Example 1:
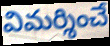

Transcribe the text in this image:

విమర్శించే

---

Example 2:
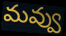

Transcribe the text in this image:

మవ్వు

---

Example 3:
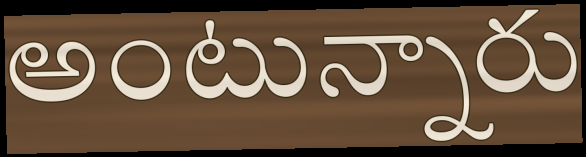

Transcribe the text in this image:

అంటున్నారు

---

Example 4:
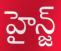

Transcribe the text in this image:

హైన్జ్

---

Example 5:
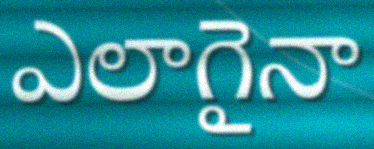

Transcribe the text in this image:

ఎలాగైనా